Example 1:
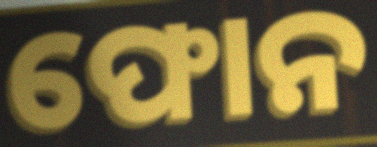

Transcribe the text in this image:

ଫୋନ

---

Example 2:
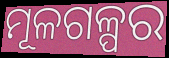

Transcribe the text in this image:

ମୂଳଗଳ୍ପର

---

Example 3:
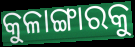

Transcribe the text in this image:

କୁଳାଙ୍ଗାରକୁ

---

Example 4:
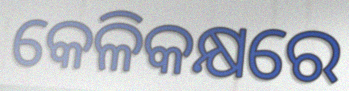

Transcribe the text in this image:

କେଳିକକ୍ଷରେ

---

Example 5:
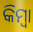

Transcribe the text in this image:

କିମ୍ଵା